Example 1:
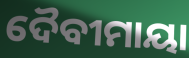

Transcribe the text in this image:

ଦୈବୀମାୟା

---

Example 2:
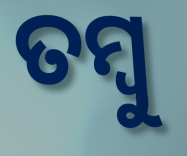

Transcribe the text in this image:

ତମ୍ବୁ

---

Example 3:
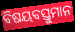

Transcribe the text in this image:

ବିଷୟବସ୍ତୁମାନ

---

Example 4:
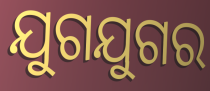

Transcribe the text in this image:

ଯୁଗଯୁଗର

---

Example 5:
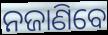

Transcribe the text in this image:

ନଜାଣିବେ